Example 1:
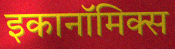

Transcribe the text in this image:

इकानॉमिक्स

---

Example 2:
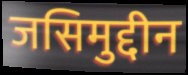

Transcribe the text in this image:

जसिमुद्दीन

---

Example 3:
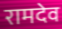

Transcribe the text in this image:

रामदेव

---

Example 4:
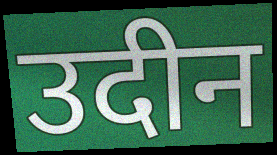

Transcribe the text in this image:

उदीन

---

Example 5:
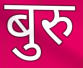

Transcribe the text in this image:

बुरु